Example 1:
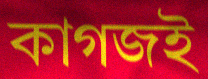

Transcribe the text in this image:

কাগজই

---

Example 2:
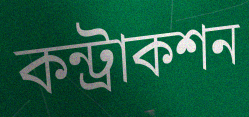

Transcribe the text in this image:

কন্ট্রাকশন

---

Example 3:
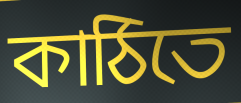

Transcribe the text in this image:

কাঠিতে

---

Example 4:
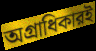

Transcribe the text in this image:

অগ্রাধিকারই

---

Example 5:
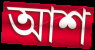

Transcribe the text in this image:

আশ